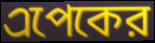
এপেকের